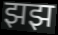
झझ